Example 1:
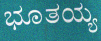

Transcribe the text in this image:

ಭೂತಯ್ಯ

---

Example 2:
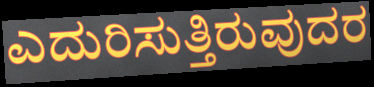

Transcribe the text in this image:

ಎದುರಿಸುತ್ತಿರುವುದರ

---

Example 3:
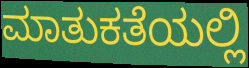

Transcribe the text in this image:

ಮಾತುಕತೆಯಲ್ಲಿ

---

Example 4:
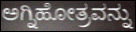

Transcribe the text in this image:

ಅಗ್ನಿಹೋತ್ರವನ್ನು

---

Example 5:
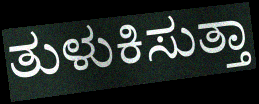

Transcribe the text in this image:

ತುಳುಕಿಸುತ್ತಾ